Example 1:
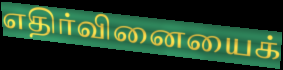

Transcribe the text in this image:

எதிர்வினையைக்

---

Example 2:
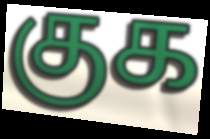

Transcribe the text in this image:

குக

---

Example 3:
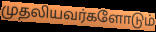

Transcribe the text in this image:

முதலியவர்களோடும்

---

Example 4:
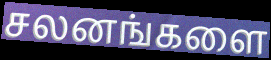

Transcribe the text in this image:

சலனங்களை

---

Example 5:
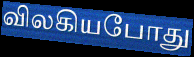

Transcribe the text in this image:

விலகியபோது